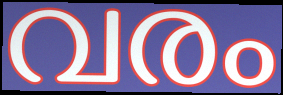
വരം